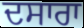
ਦਸਾਰਾ